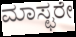
ಮಾಸ್ಟರೇ